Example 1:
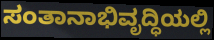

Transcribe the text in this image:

ಸಂತಾನಾಭಿವೃದ್ಧಿಯಲ್ಲಿ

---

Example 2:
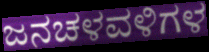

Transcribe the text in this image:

ಜನಚಳವಳಿಗಳ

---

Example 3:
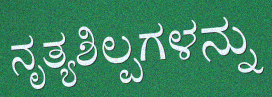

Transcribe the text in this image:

ನೃತ್ಯಶಿಲ್ಪಗಳನ್ನು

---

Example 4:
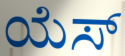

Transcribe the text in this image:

ಯೆಸ್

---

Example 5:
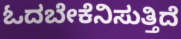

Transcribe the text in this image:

ಓದಬೇಕೆನಿಸುತ್ತಿದೆ